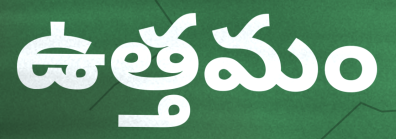
ఉత్తమం